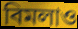
বিমলাও